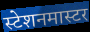
स्टेशनमास्टर